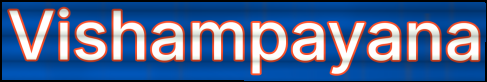
Vishampayana